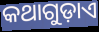
କଥାଗୁଡ଼ାଏ